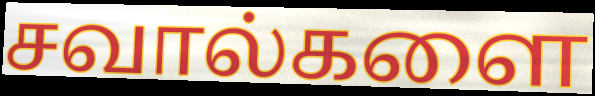
சவால்களை